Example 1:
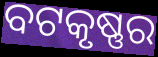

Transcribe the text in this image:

ବଟକୃଷ୍ଣର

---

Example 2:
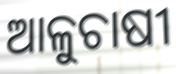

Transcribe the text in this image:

ଆଳୁଚାଷୀ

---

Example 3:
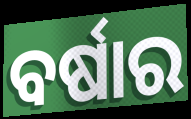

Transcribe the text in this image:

ବର୍ଷାର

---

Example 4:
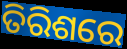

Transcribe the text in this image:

ତିରିଶରେ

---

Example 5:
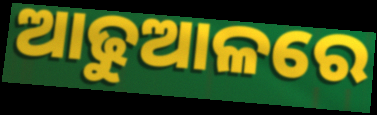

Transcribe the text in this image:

ଆଢୁଆଳରେ